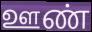
ஊண்